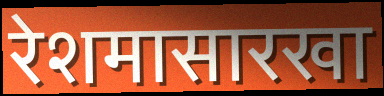
रेशमासारखा